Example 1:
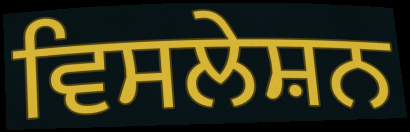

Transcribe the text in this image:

ਵਿਸਲੇਸ਼ਨ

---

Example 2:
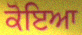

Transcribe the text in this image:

ਕੋਇਆ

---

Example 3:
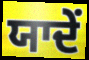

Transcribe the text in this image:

ਯਾਦੇਂ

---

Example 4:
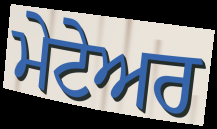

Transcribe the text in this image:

ਮੇਟੇਅਰ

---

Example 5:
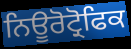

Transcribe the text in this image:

ਨਿਊਰੋਟ੍ਰੋਫਿਕ